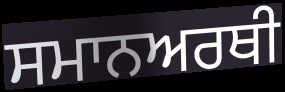
ਸਮਾਨਅਰਥੀ